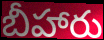
బీహారు